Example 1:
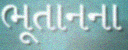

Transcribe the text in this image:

ભૂતાનના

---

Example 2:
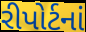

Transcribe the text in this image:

રીપોર્ટનાં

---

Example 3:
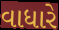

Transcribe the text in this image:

વાધારે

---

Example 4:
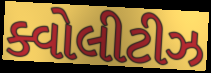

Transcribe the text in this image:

ક્વોલીટીઝ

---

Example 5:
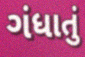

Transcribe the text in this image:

ગંધાતું